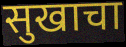
सुखाचा